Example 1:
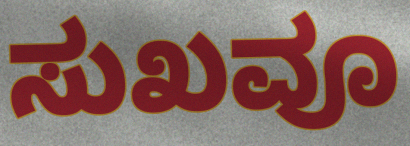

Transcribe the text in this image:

ಸುಖವೂ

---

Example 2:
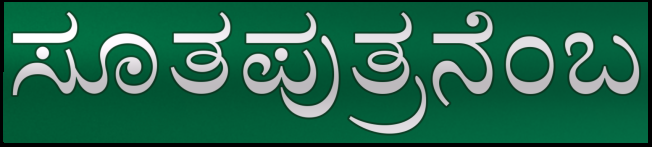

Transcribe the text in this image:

ಸೂತಪುತ್ರನೆಂಬ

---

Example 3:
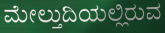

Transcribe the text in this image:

ಮೇಲ್ತುದಿಯಲ್ಲಿರುವ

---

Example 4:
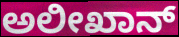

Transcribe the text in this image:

ಅಲೀಖಾನ್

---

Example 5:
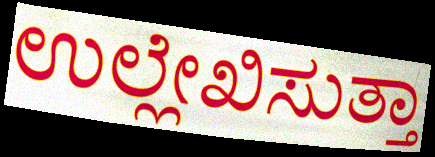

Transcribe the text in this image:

ಉಲ್ಲೇಖಿಸುತ್ತಾ